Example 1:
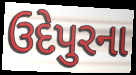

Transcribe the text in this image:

ઉદેપુરના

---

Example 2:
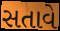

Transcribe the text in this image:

સતાવે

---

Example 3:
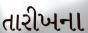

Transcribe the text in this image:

તારીખના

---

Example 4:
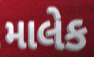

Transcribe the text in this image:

માલેક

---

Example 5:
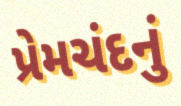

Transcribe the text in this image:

પ્રેમચંદનું